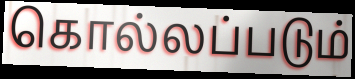
கொல்லப்படும்